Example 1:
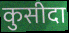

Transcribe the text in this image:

कुसीदा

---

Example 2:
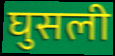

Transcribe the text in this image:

घुसली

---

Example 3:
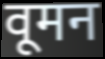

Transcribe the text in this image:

वूमन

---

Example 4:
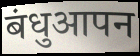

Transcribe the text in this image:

बंधुआपन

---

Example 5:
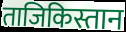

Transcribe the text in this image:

ताजिकिस्तान